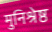
मुनिश्रेष्ठ